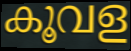
കൂവള